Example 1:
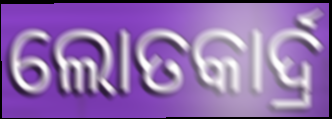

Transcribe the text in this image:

ଲୋତକାର୍ଦ୍ର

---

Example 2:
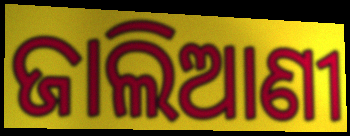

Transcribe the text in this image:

ଜାଲିଆଣୀ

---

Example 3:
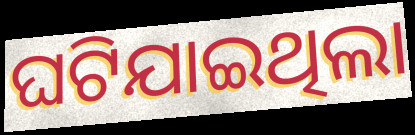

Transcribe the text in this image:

ଘଟିଯାଇଥିଲା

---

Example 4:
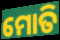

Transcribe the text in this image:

ମୋତି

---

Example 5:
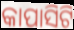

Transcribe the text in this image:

କାପାସିଟି